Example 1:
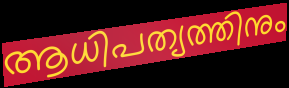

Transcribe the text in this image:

ആധിപത്യത്തിനും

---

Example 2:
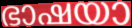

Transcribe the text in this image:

ഭാഷയാ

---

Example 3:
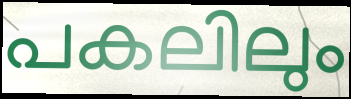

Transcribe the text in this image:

പകലിലും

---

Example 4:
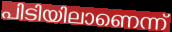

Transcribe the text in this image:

പിടിയിലാണെന്ന്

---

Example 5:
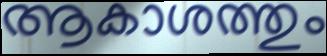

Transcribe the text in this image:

ആകാശത്തും